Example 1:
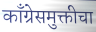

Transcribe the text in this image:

काँग्रेसमुक्तीचा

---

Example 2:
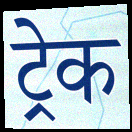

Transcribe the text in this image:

ट्रेक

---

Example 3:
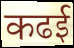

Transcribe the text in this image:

कढई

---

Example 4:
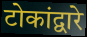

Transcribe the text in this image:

टोकांद्वारे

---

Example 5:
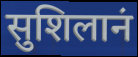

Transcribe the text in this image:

सुशिलानं